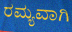
ರಮ್ಯವಾಗಿ